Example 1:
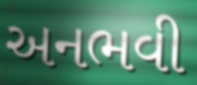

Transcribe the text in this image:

અનભવી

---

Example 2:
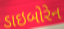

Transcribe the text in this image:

ડાઇબોરેન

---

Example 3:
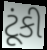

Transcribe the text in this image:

ટૂંકી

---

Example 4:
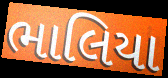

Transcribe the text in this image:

ભાલિયા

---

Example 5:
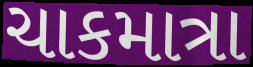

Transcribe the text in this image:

ચાકમાત્રા